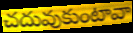
చదువుకుంటావా